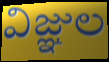
విజ్ఞుల